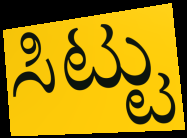
ಸಿಟ್ಟು